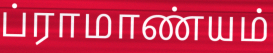
ப்ராமாண்யம்